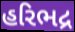
હરિભદ્ર